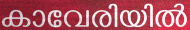
കാവേരിയിൽ